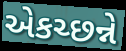
એકચ્છન્ને